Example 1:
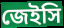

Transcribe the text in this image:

জেইসি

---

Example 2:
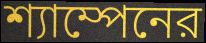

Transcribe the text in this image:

শ্যাম্পেনের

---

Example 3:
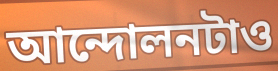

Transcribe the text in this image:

আন্দোলনটাও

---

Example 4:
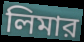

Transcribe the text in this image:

লিমার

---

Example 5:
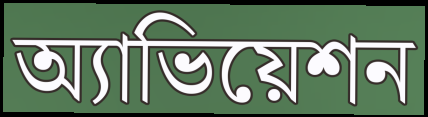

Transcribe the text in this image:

অ্যাভিয়েশন